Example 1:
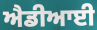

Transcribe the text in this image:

ਐਡੀਆਈ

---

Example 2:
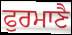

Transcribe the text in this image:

ਫੁਰਮਾਣੈ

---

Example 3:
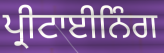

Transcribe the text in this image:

ਪ੍ਰੀਟਾਈਨਿੰਗ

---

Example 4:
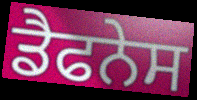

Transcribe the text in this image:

ਡੈਫਨੇਸ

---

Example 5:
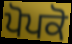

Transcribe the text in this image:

ਪੋਪਕੋ